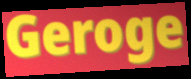
Geroge